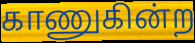
காணுகின்ற